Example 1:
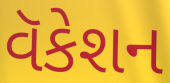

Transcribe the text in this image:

વૅકેશન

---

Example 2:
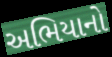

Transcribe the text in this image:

અભિયાનો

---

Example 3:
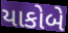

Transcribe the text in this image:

યાકોબે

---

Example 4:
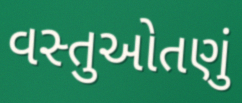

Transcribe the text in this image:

વસ્તુઓતણું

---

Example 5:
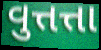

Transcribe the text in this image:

વુત્તત્તા